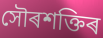
সৌৰশক্তিৰ